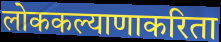
लोककल्याणाकरिता